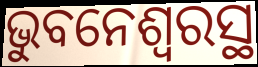
ଭୁବନେଶ୍ଵରସ୍ଥ